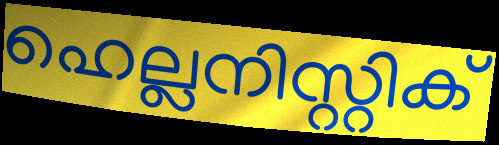
ഹെല്ലനിസ്റ്റിക്